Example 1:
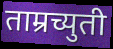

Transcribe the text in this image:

ताम्रच्युती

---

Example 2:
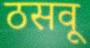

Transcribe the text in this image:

ठसवू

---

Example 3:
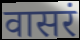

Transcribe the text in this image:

वासरं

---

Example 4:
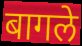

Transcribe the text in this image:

बागले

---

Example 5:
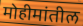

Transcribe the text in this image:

मोहीमांतील